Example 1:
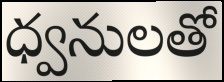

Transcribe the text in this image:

ధ్వనులతో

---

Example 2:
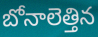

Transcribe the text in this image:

బోనాలెత్తిన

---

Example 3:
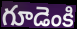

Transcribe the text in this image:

గూడెంకి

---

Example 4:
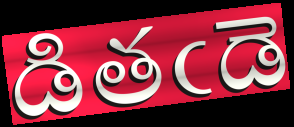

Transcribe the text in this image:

డితఁడె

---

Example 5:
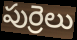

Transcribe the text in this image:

పుర్రెలు